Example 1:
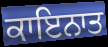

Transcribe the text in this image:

ਕਾਇਨਾਤ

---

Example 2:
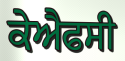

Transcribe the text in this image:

ਕੇਐਫਸੀ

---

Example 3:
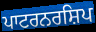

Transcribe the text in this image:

ਪਾਟਰਨਰਸ਼ਿਪ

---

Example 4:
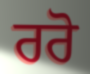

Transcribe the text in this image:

ਰਰੋ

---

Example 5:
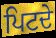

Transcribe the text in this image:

ਪਿਟਦੇ